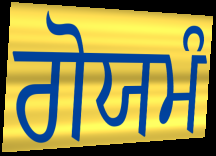
ਗੋਯਮੰ